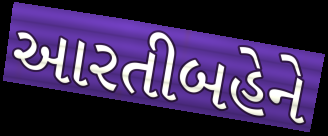
આરતીબહેને